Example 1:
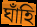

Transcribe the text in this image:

ঘাঁহি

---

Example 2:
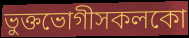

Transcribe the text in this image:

ভুক্তভোগীসকলকো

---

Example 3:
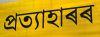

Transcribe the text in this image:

প্ৰত্যাহাৰৰ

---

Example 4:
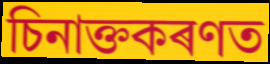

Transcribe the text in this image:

চিনাক্তকৰণত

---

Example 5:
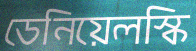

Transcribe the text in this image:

ডেনিয়েলস্কি